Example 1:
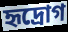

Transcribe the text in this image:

হৃদ্রোগ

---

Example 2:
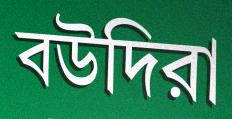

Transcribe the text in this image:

বউদিরা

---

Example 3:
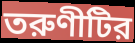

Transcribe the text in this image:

তরুণীটির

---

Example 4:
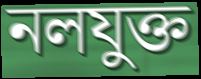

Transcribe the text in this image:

নলযুক্ত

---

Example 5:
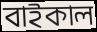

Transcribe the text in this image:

বাইকাল